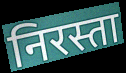
निरस्ता